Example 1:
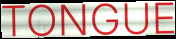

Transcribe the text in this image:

TONGUE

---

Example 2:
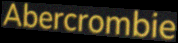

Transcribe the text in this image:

Abercrombie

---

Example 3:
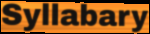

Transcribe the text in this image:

Syllabary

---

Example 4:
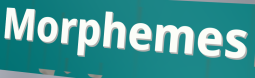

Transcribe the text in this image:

Morphemes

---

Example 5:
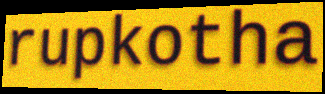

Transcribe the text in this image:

rupkotha